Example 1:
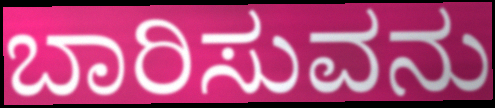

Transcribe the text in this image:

ಬಾರಿಸುವನು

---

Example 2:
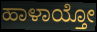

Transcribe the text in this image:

ಹಾಳಾಯ್ತೋ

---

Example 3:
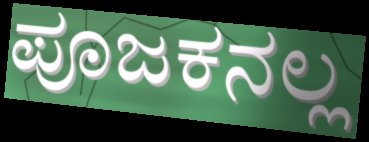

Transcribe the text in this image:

ಪೂಜಕನಲ್ಲ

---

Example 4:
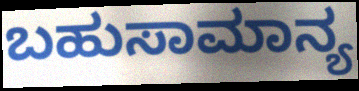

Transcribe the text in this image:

ಬಹುಸಾಮಾನ್ಯ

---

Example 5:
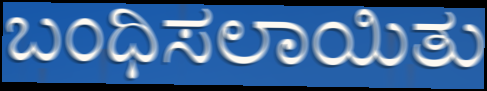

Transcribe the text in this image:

ಬಂಧಿಸಲಾಯಿತು